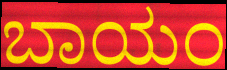
ಬಾಯಂ